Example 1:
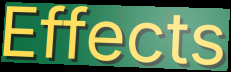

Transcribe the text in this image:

Effects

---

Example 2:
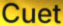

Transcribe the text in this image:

Cuet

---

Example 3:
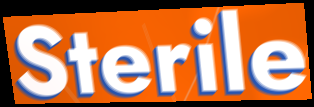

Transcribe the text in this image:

Sterile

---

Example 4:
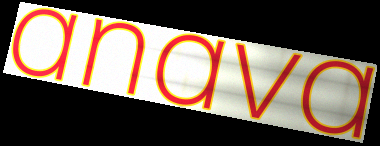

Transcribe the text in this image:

anava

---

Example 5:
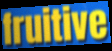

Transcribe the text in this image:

fruitive